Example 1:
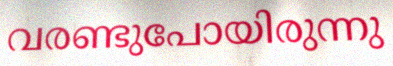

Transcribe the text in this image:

വരണ്ടുപോയിരുന്നു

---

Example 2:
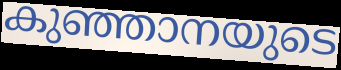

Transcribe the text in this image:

കുഞ്ഞാനയുടെ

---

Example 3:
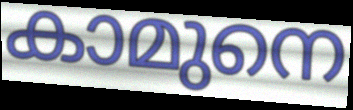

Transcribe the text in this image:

കാമുനെ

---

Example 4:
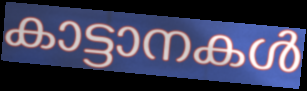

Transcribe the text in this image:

കാട്ടാനകൾ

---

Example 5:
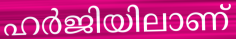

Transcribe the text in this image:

ഹർജിയിലാണ്